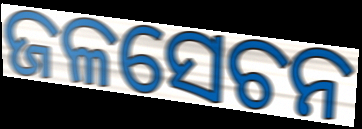
ଜଳସେଚନ